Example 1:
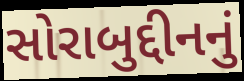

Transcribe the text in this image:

સોરાબુદ્દીનનું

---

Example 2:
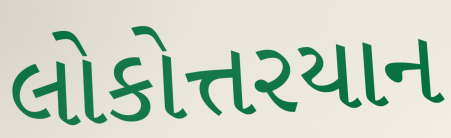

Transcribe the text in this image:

લોકોત્તરયાન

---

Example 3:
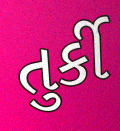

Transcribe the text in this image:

તુર્કી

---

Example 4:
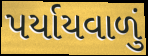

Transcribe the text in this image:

પર્યાયવાળું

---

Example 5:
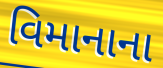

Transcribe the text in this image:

વિમાનાના